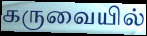
கருவையில்